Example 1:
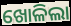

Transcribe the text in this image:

ଖୋଳିଲା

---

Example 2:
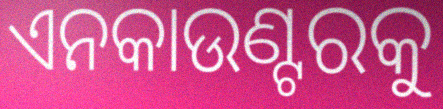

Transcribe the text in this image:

ଏନକାଉଣ୍ଟରକୁ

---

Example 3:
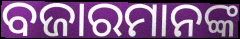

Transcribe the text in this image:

ବଜାରମାନଙ୍କ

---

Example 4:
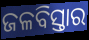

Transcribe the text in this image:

ଜଳବିସ୍ତାର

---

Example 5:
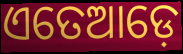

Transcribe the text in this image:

ଏତେଆଡ଼େ